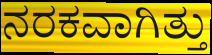
ನರಕವಾಗಿತ್ತು